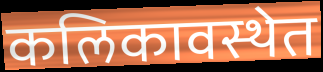
कलिकावस्थेत